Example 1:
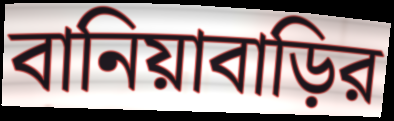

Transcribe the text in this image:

বানিয়াবাড়ির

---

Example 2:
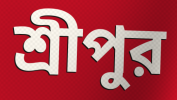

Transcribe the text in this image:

শ্রীপুর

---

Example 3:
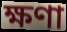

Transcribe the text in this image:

ক্ষণা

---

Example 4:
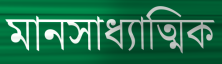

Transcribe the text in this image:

মানসাধ্যাত্মিক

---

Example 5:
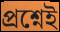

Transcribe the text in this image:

প্রশ্নেই